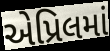
એપ્રિલમાં